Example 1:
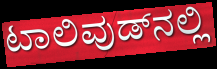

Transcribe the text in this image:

ಟಾಲಿವುಡ್‌ನಲ್ಲಿ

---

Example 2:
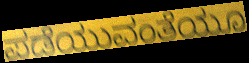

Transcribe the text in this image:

ಪಡೆಯುವಂತೆಯೂ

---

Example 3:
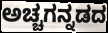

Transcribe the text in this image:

ಅಚ್ಚಗನ್ನಡದ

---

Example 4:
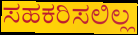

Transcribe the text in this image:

ಸಹಕರಿಸಲಿಲ್ಲ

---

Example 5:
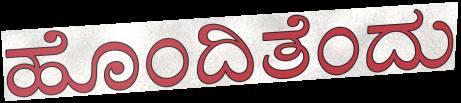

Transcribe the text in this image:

ಹೊಂದಿತೆಂದು